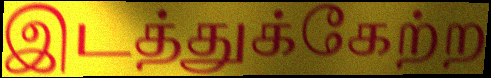
இடத்துக்கேற்ற